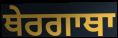
ਥੇਰਗਾਥਾ